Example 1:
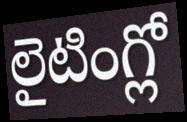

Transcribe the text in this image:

లైటింగ్లో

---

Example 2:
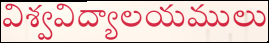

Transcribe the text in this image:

విశ్వవిద్యాలయములు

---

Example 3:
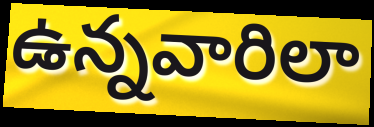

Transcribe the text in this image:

ఉన్నవారిలా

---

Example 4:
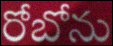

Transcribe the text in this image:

రోబోను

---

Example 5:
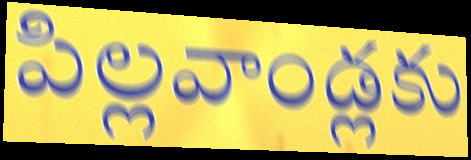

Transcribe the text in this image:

పిల్లవాండ్లకు